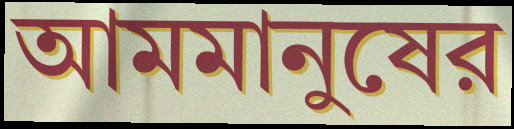
আমমানুষের